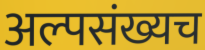
अल्पसंख्यच